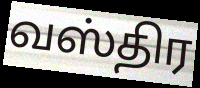
வஸ்திர